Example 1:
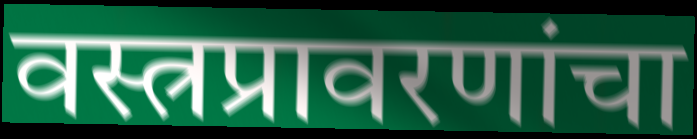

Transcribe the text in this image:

वस्त्रप्रावरणांचा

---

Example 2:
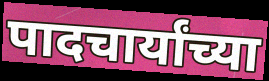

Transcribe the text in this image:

पादचार्यांच्या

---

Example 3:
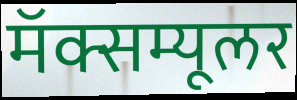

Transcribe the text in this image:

मॅक्सम्यूलर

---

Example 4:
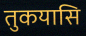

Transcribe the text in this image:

तुकयासि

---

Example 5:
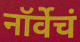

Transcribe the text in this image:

नॉर्वेचं